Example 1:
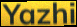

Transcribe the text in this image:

Yazhi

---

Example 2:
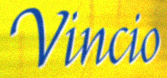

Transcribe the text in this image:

Vincio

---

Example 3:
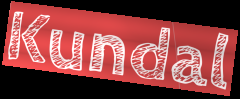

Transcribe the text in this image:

Kundal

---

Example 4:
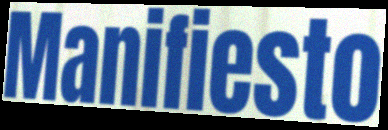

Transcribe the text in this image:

Manifiesto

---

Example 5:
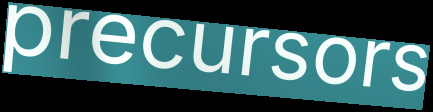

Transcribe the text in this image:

precursors